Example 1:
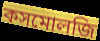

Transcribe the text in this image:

কসমোলজি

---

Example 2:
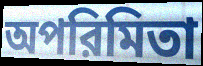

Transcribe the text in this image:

অপরিমিতা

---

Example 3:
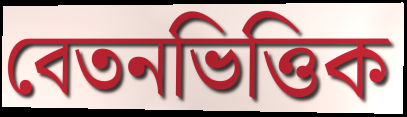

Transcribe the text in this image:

বেতনভিত্তিক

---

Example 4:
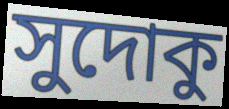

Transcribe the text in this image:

সুদোকু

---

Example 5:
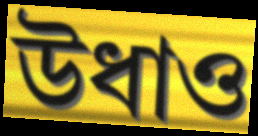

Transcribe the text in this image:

উধাও